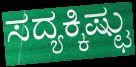
ಸದ್ಯಕ್ಕಿಷ್ಟು